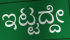
ಇಟ್ಟದ್ದೇ